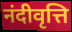
नंदीवृत्ति